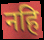
नहि